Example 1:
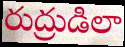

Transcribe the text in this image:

రుద్రుడిలా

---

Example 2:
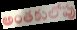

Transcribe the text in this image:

అంతకులోపు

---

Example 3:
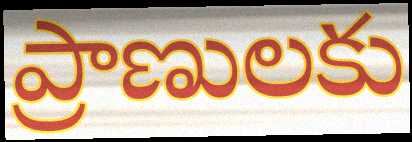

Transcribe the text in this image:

ప్రాణులకు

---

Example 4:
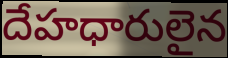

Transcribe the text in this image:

దేహధారులైన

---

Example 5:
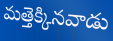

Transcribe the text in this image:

మత్తెక్కినవాడు